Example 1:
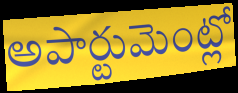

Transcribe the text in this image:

అపార్టుమెంట్లో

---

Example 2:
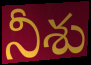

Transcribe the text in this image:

నీశు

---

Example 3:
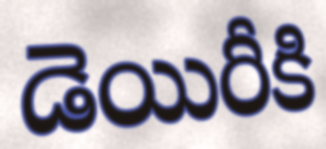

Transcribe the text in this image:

డెయిరీకి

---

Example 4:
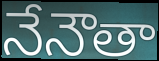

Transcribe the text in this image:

నేనౌతా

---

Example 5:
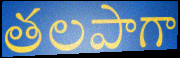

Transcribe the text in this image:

తలపాగా